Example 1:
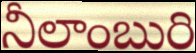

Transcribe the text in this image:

నీలాంబురి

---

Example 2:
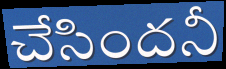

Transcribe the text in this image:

చేసిందనీ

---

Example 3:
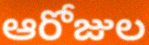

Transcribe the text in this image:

ఆరోజుల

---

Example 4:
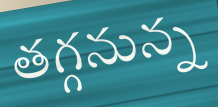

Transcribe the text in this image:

తగ్గనున్న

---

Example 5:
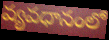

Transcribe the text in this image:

వ్యవధానంలో